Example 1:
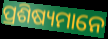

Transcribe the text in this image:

ପ୍ରଶିଷ୍ୟମାନେ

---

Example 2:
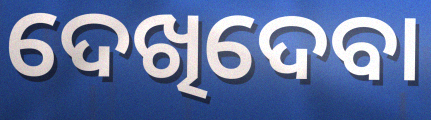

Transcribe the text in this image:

ଦେଖିଦେବା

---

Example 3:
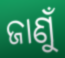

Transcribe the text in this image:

ଜାଣୁଁ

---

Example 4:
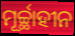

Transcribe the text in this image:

ମୂର୍ଚ୍ଛାହୀନ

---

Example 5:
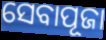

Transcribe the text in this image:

ସେବାପୂଜା